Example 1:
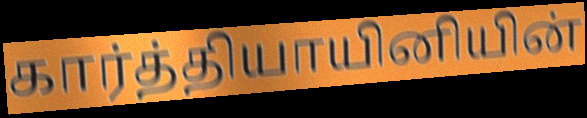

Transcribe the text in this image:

கார்த்தியாயினியின்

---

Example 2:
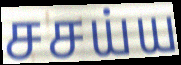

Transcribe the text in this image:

சசய்ய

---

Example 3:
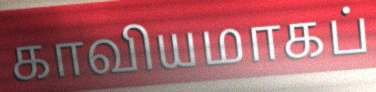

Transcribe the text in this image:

காவியமாகப்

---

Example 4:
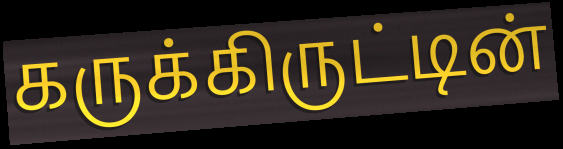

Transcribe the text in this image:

கருக்கிருட்டின்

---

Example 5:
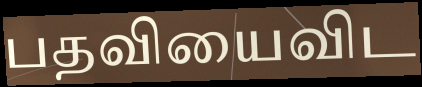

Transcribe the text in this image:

பதவியைவிட